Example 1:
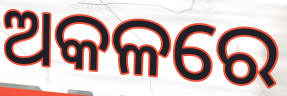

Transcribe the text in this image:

ଅକଳରେ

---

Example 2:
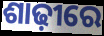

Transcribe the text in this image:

ଶାଢ଼ୀରେ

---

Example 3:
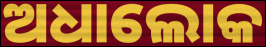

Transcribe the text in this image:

ଅଧାଲୋକ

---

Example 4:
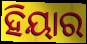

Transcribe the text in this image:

ହିୟାର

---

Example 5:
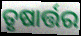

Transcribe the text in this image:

ତୃଷାର୍ତ୍ତର